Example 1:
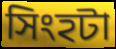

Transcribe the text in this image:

সিংহটা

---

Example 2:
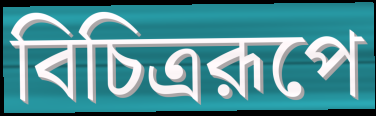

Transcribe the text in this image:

বিচিত্ররূপে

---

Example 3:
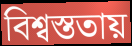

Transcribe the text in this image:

বিশ্বস্ততায়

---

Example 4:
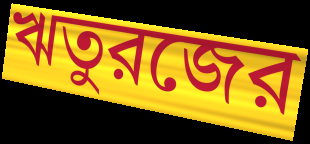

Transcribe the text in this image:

ঋতুরজের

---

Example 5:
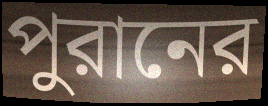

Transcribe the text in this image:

পুরানের